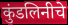
कुंडलिनीचे